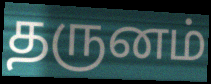
தருனம்